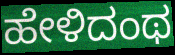
ಹೇಳಿದಂಥ